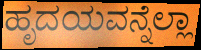
ಹೃದಯವನ್ನೆಲ್ಲಾ